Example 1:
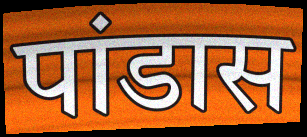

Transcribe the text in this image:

पांडास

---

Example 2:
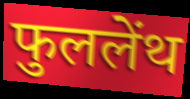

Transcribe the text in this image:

फुललेंथ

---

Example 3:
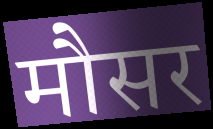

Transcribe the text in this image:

मौसर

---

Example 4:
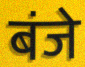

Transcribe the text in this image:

बंजे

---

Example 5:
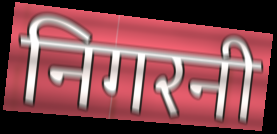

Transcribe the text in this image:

निगरनी